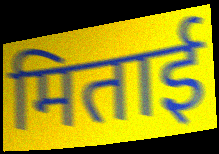
मिताई